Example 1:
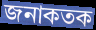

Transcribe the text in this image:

জনাকতক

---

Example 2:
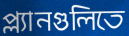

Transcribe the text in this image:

প্ল্যানগুলিতে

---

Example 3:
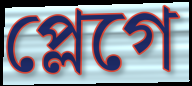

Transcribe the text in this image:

প্লেগে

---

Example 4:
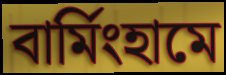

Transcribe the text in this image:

বার্মিংহামে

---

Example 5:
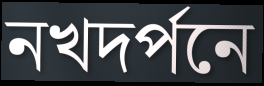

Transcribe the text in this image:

নখদর্পনে